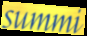
summi